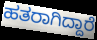
ಹತರಾಗಿದ್ದಾರೆ